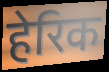
हेरिक